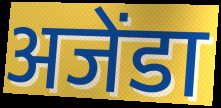
अजेंडा